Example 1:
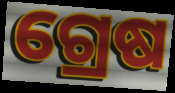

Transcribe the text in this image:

ଗ୍ରେଷ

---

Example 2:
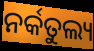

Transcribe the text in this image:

ନର୍କତୁଲ୍ୟ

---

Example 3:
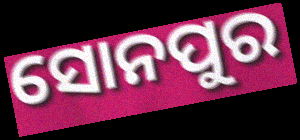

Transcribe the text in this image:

ସୋନପୁର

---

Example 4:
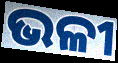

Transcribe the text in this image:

ଭଳୀ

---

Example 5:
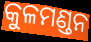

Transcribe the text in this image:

କୁଳମଣ୍ଡନ